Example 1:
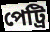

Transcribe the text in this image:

পেট্ৰি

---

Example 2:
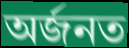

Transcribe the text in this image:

অৰ্জনত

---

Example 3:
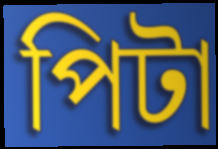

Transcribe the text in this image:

পিটা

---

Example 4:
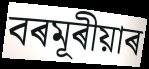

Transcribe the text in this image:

বৰমূৰীয়াৰ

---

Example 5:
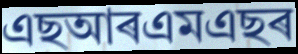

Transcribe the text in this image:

এছআৰএমএছৰ